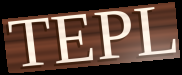
TEPL